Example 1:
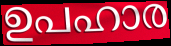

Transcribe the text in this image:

ഉപഹാര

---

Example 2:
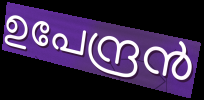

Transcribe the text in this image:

ഉപേന്ദ്രൻ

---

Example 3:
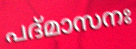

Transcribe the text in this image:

പദ്മാസനഃ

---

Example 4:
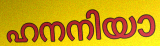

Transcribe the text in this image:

ഹനനിയാ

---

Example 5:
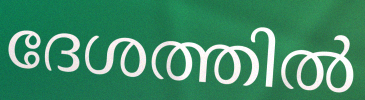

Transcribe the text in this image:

ദേശത്തിൽ